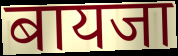
बायजा